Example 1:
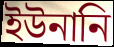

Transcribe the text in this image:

ইউনানি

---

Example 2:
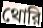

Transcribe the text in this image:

থোরি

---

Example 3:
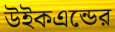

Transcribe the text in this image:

উইকএন্ডের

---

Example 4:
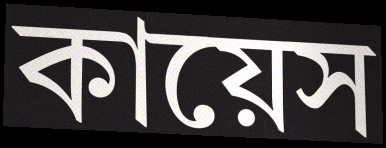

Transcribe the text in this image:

কায়েস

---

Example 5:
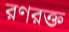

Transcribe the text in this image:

রণরক্ত